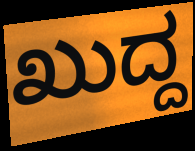
ಖುದ್ದ